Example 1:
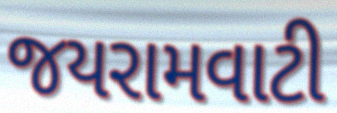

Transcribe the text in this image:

જયરામવાટી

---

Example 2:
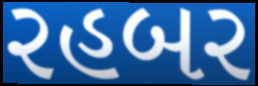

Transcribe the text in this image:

રહબર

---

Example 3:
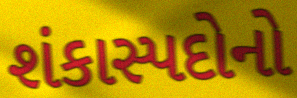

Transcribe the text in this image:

શંકાસ્પદોનો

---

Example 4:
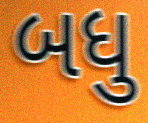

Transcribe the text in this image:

બધુ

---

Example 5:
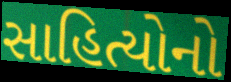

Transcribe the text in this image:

સાહિત્યોનો